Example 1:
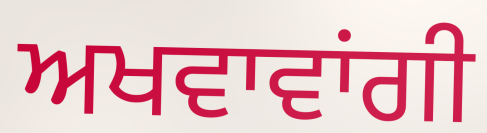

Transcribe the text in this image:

ਅਖਵਾਵਾਂਗੀ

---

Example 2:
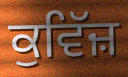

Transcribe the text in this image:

ਕੁਵਿੱਜ਼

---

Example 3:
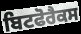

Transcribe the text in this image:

ਬਿਟਫੋਰੈਕਸ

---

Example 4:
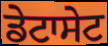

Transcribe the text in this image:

ਡੇਟਾਸੇਟ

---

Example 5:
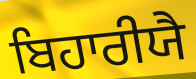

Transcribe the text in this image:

ਬਿਹਾਰੀਯੈ